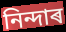
নিন্দাৰ